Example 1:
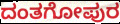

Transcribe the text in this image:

ದಂತಗೋಪುರ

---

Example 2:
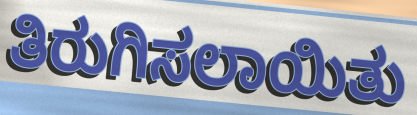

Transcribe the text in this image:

ತಿರುಗಿಸಲಾಯಿತು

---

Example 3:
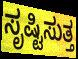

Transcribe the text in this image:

ಸೃಷ್ಟಿಸುತ್ತ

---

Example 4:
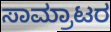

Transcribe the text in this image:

ಸಾಮ್ರಾಟರ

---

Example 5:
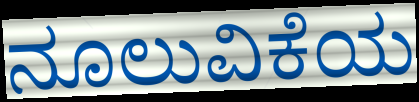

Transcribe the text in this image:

ನೂಲುವಿಕೆಯ